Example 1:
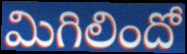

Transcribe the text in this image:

మిగిలిందో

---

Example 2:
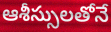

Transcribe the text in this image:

ఆశీస్సులతోనే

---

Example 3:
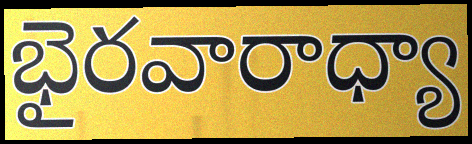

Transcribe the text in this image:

భైరవారాధ్యా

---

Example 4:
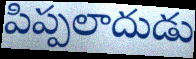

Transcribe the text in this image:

పిప్పలాదుడు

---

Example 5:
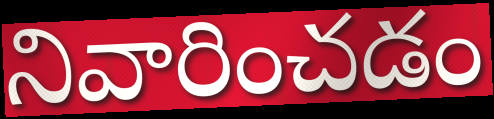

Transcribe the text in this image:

నివారించడం